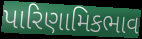
પારિણામિકભાવ